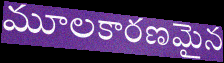
మూలకారణమైన